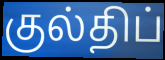
குல்திப்